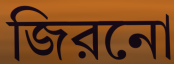
জিরনো